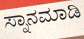
ಸ್ನಾನಮಾಡಿ